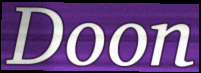
Doon